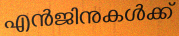
എൻജിനുകൾക്ക്